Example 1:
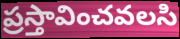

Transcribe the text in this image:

ప్రస్తావించవలసి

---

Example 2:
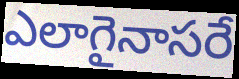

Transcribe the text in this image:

ఎలాగైనాసరే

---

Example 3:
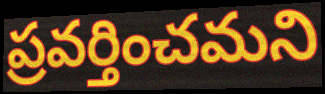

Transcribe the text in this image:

ప్రవర్తించమని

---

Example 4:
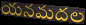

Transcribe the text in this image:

యనమదల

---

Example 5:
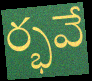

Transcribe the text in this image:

ర్భవే